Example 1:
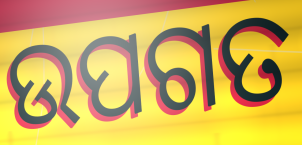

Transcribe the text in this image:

ଉପଗତ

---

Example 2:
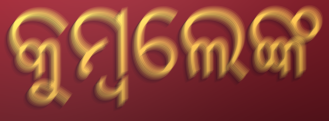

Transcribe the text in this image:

କୁମ୍ବଲେଙ୍କ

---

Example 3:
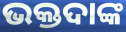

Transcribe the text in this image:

ଭକ୍ତଦାଙ୍କ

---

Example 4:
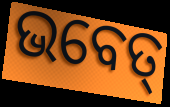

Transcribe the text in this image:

ଭବେତ୍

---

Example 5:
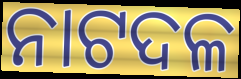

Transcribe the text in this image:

ନାଟଦଳ